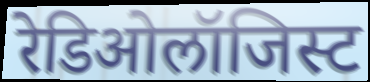
रेडिओलॉजिस्ट